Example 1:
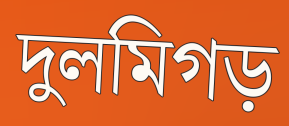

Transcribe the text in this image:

দুলমিগড়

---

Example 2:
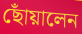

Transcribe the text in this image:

ছোঁয়ালেন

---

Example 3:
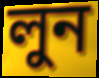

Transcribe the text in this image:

লুন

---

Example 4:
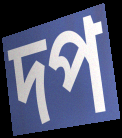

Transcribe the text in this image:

দপ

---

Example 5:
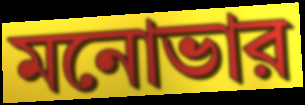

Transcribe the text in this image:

মনোভার